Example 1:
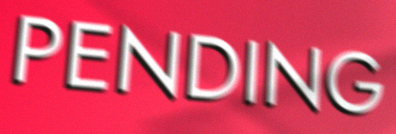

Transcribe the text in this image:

PENDING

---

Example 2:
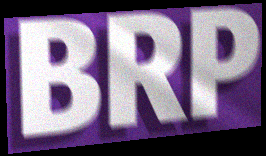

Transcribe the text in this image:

BRP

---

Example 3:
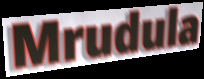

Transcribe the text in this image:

Mrudula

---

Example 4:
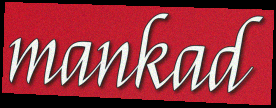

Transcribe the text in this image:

mankad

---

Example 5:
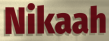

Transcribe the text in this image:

Nikaah